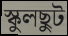
স্কুলছুট